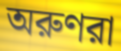
অরুণরা